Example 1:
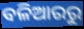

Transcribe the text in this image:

ବଳିଆରରୁ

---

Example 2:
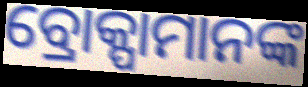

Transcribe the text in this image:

ବ୍ରୋକ୍ପାମାନଙ୍କ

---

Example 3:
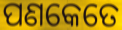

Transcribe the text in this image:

ପଣକେତେ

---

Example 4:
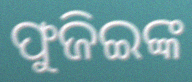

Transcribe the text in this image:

ଫୁଜିଇଙ୍କ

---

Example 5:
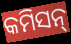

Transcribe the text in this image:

କମିସନ୍